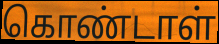
கொண்டாள்